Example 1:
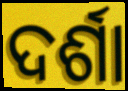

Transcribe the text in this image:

ଦର୍ଶା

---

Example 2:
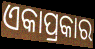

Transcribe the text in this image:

ଏକାପ୍ରକାର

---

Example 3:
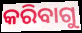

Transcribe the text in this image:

କରିବାଗୁ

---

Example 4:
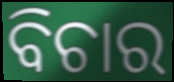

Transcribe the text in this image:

ବିଚାର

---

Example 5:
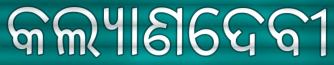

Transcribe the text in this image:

କଲ୍ୟାଣଦେବୀ